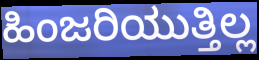
ಹಿಂಜರಿಯುತ್ತಿಲ್ಲ